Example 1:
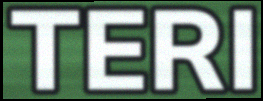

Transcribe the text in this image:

TERI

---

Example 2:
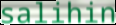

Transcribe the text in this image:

salihin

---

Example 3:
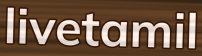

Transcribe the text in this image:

livetamil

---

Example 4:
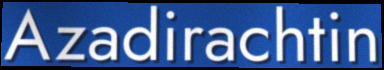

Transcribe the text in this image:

Azadirachtin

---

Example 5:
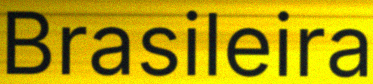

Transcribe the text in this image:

Brasileira